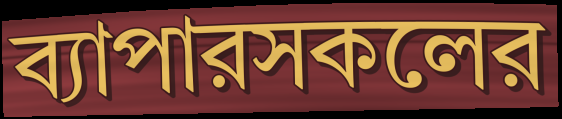
ব্যাপারসকলের